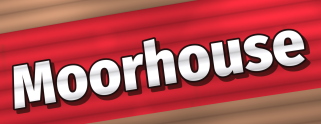
Moorhouse